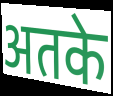
अतके